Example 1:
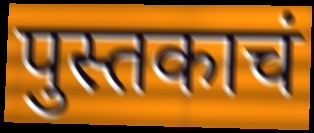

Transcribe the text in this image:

पुस्तकाचं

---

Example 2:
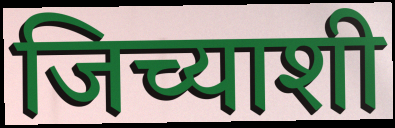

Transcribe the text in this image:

जिच्याशी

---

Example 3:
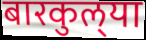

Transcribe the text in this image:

बारकुल्या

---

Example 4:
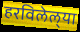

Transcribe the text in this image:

हरविलेल्या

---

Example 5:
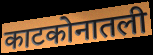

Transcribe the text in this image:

काटकोनातली